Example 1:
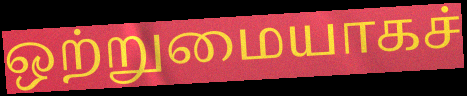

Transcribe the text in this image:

ஒற்றுமையாகச்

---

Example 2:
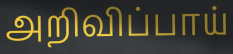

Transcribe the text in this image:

அறிவிப்பாய்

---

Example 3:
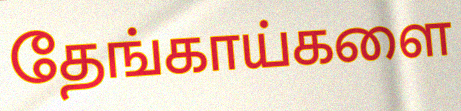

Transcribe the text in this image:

தேங்காய்களை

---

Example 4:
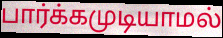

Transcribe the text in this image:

பார்க்கமுடியாமல்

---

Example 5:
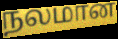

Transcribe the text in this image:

நலமான